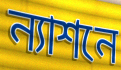
ন্যাশনে